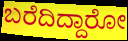
ಬರೆದಿದ್ದಾರೋ